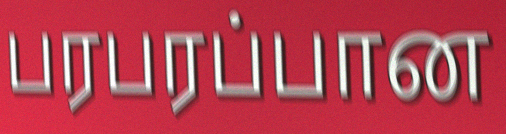
பரபரப்பான